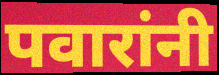
पवारांनी